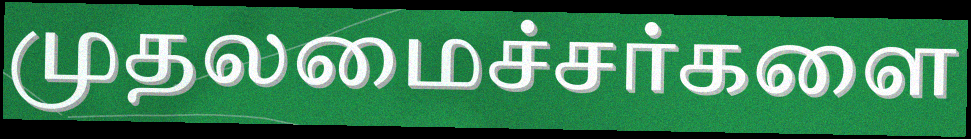
முதலமைச்சர்களை